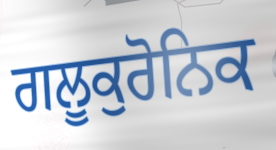
ਗਲੂਕੁਰੋਨਿਕ